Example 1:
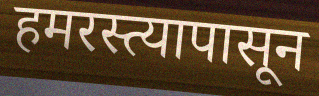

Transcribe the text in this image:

हमरस्त्यापासून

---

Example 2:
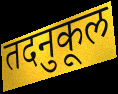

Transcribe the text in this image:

तदनुकूल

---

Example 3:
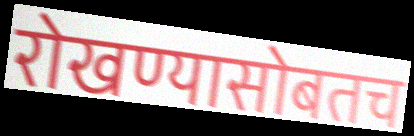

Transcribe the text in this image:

रोखण्यासोबतच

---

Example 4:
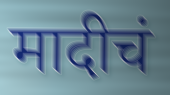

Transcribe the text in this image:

मादीचं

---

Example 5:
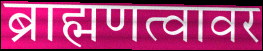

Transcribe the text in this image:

ब्राह्मणत्वावर